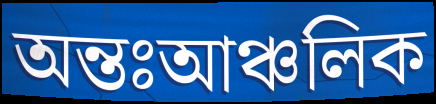
অন্তঃআঞ্চলিক